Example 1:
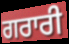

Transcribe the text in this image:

ਗਰਾਰੀ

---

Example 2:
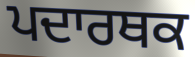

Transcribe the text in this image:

ਪਦਾਰਥਕ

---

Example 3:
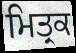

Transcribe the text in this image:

ਮਿਤ੍ਰਕ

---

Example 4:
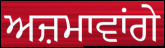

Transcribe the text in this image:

ਅਜ਼ਮਾਵਾਂਗੇ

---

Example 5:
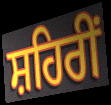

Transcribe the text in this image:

ਸ਼ਹਿਰੀਂ